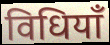
विधियाँ